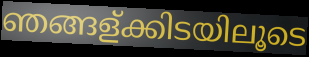
ഞങ്ങള്ക്കിടയിലൂടെ